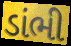
ડાંભી